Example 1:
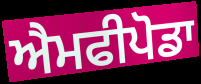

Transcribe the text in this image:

ਐਮਫੀਪੋਡਾ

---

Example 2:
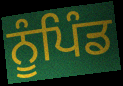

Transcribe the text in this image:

ਨੂੰਪਿੰਡ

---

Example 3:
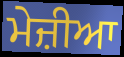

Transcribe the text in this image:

ਮੇਜ਼ੀਆ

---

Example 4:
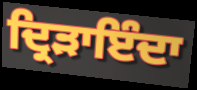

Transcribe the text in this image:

ਦ੍ਰਿੜਾਇੰਦਾ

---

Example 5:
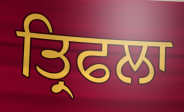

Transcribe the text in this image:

ਤ੍ਰਿਫਲਾ